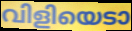
വിളിയെടാ